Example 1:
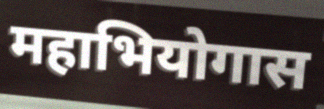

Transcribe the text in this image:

महाभियोगास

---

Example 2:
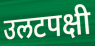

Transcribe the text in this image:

उलटपक्षी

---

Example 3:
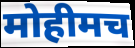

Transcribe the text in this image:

मोहीमच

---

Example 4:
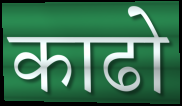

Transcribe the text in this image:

काढो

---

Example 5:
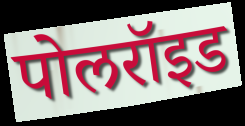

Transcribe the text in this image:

पोलरॉइड